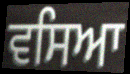
ਵਸਿਆ